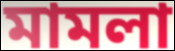
মামলা